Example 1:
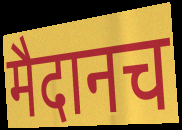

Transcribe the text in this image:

मैदानच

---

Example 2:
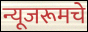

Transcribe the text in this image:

न्यूजरूमचे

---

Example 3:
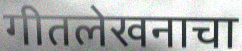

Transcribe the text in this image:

गीतलेखनाचा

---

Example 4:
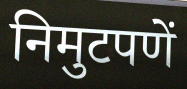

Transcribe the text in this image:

निमुटपणें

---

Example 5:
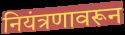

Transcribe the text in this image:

नियंत्रणावरून